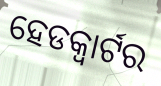
ହେଡକ୍ୱାର୍ଟର